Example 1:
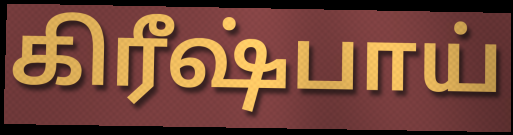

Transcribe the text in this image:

கிரீஷ்பாய்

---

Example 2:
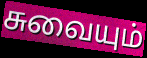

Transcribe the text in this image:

சுவையும்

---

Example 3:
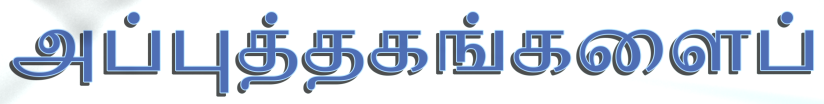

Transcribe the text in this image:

அப்புத்தகங்களைப்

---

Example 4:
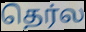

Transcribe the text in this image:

தெர்ல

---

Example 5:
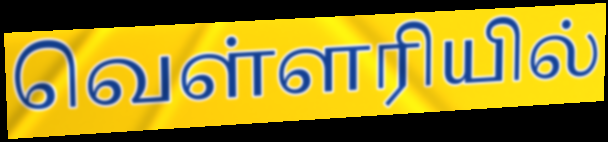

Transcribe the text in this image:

வெள்ளரியில்